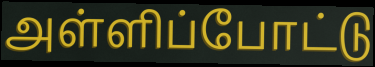
அள்ளிப்போட்டு